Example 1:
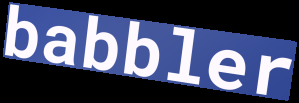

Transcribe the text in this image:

babbler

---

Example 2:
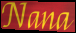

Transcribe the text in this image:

Nana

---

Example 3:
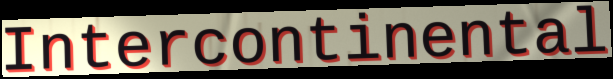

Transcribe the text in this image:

Intercontinental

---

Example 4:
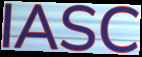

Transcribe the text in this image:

IASC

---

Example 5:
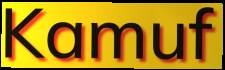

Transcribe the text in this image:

Kamuf